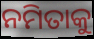
ନମିତାକୁ